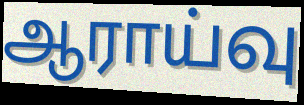
ஆராய்வு